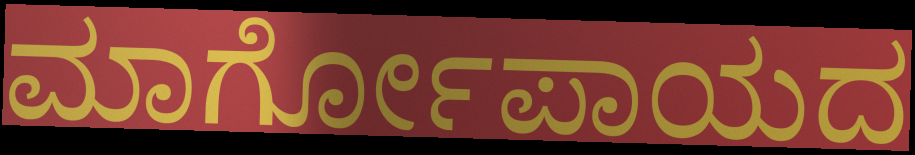
ಮಾರ್ಗೋಪಾಯದ